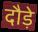
दौड़े